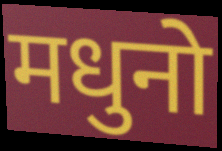
मधुनो